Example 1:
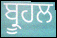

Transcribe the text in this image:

ਬ੍ਰੂਹਲ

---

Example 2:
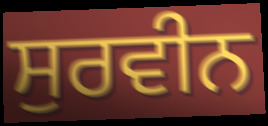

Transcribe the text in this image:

ਸੁਰਵੀਨ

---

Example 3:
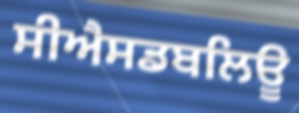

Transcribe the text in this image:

ਸੀਐਸਡਬਲਿਊ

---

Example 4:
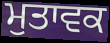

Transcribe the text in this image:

ਮੁਤਾਵਕ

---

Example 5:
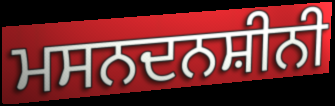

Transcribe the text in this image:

ਮਸਨਦਨਸ਼ੀਨੀ